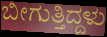
ಬೀಗುತ್ತಿದ್ದಳು